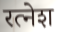
रत्नेश